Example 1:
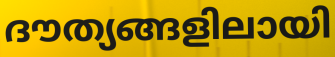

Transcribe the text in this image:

ദൗത്യങ്ങളിലായി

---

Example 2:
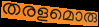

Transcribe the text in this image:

തരളമൊരു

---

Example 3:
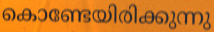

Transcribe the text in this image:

കൊണ്ടേയിരിക്കുന്നു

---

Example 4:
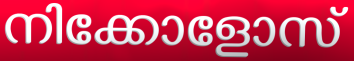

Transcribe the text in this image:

നിക്കോളോസ്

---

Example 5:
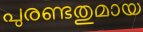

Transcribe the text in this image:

പുരണ്ടതുമായ